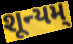
શૂન્યમ્